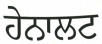
ਹੇਨਾਲਟ